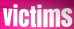
victims